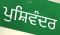
ਪੁਸ਼ਿਵੰਦਰ